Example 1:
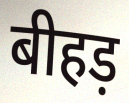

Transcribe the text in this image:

बीहड़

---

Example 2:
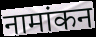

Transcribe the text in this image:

नामांकन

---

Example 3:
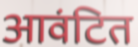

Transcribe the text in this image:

आवंटित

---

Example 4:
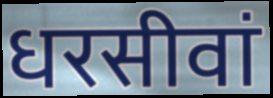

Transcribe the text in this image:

धरसीवां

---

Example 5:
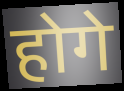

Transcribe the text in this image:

होगे